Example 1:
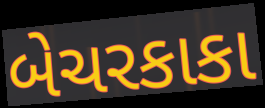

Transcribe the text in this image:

બેચરકાકા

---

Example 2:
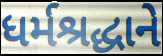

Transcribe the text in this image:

ધર્મશ્રદ્ધાને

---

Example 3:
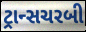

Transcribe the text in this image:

ટ્રાન્સચરબી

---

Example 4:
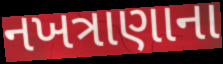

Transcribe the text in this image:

નખત્રાણાના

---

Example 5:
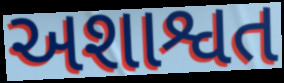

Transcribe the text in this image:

અશાશ્વત